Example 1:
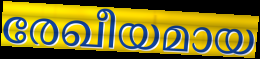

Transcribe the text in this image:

രേഖീയമായ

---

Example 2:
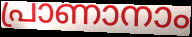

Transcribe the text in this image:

പ്രാണാനാം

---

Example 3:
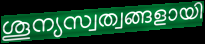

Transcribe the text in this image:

ശൂന്യസ്വത്വങ്ങളായി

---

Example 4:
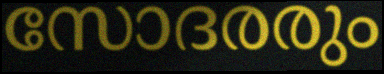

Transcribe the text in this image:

സോദരരും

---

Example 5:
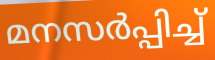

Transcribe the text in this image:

മനസർപ്പിച്ച്